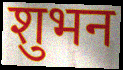
शुभन